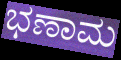
ಭಣಾಮ